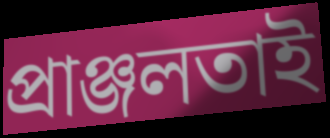
প্রাঞ্জলতাই